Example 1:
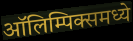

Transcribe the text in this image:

ऑलिम्पिक्समध्ये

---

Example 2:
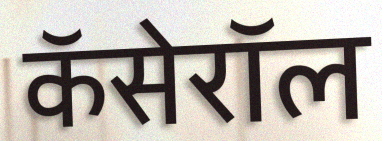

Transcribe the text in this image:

कॅसेरॉल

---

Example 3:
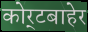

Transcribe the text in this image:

कोर्टबाहेर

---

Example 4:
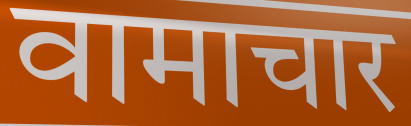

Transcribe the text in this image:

वामाचार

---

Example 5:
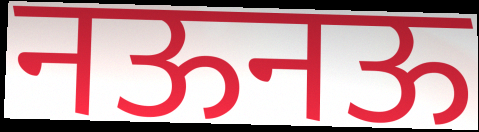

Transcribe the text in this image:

नऊनऊ